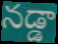
నడ్డా